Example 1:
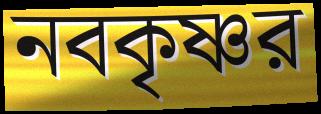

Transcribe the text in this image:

নবকৃষ্ণর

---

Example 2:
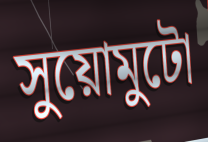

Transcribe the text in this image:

সুয়োমুটো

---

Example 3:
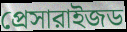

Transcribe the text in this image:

প্রেসারাইজড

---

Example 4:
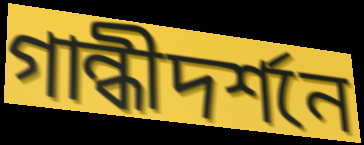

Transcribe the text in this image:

গান্ধীদর্শনে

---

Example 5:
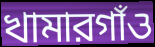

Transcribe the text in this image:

খামারগাঁও